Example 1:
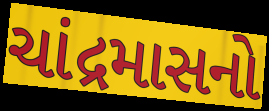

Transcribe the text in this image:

ચાંદ્રમાસનો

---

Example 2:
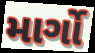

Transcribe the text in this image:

માર્ગો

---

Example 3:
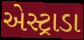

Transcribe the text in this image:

એસ્ટ્રાડા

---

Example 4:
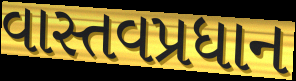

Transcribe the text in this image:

વાસ્તવપ્રધાન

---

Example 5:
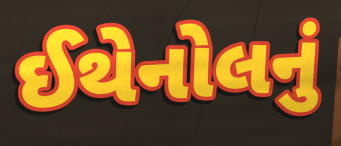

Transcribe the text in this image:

ઈથેનોલનું